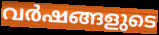
വർഷങ്ങളുടെ